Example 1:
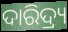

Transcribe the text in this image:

ଦାରିଦ୍ର୍ୟ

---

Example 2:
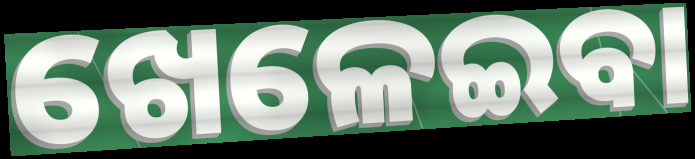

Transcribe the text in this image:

ଖେଳେଇବା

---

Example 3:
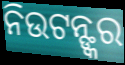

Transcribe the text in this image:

ନିଉଟନ୍ଙ୍କର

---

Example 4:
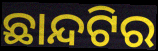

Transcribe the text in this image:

ଛାନ୍ଦଟିର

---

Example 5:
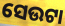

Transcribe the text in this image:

ସେଉଟା